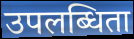
उपलब्धिता